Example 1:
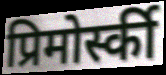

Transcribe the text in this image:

प्रिमोर्स्की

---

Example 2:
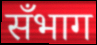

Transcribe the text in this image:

सँभाग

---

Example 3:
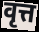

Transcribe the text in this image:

वृत्त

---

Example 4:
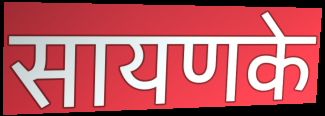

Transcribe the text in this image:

सायणके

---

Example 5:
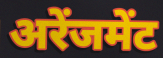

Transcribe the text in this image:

अरेंजमेंट